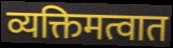
व्यक्तिमत्वात